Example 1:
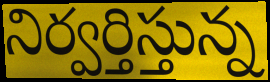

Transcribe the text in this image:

నిర్వర్తిస్తున్న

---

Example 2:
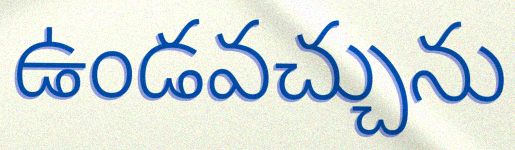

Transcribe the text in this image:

ఉండవచ్చును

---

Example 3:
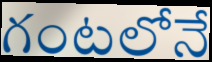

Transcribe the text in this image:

గంటలోనే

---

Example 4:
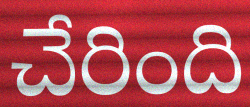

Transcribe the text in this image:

చేరింది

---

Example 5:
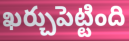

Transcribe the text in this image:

ఖర్చుపెట్టింది